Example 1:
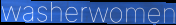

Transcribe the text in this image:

washerwomen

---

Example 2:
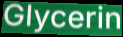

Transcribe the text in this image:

Glycerin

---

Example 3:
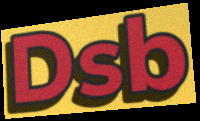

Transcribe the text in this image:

Dsb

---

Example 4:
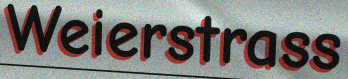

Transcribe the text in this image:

Weierstrass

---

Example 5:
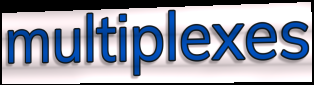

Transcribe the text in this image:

multiplexes